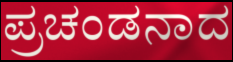
ಪ್ರಚಂಡನಾದ